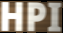
HPI